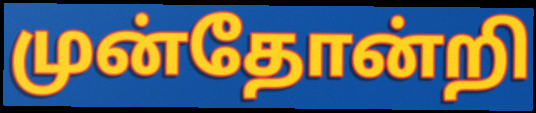
முன்தோன்றி